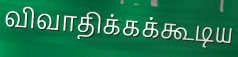
விவாதிக்கக்கூடிய